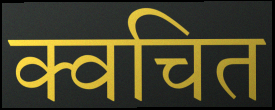
क्वचित